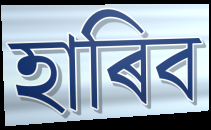
হাৰিব